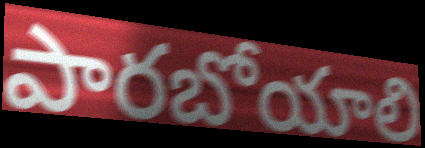
పారబోయాలి